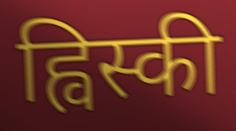
ह्विस्की